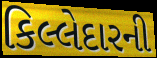
કિલ્લેદારની